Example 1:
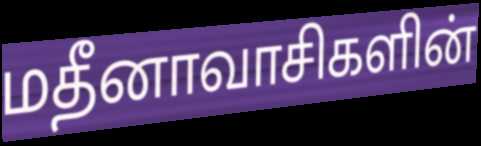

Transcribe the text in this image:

மதீனாவாசிகளின்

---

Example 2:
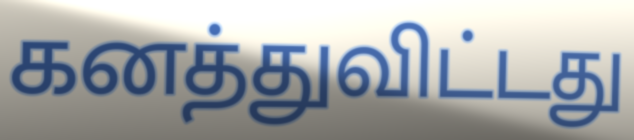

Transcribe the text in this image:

கனத்துவிட்டது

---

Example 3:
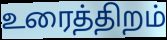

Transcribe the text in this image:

உரைத்திறம்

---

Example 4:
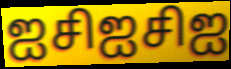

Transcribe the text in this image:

ஐசிஐசிஐ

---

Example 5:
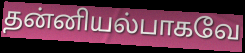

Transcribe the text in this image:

தன்னியல்பாகவே